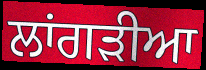
ਲਾਂਗੜੀਆ